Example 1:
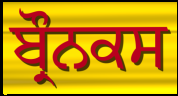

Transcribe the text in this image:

ਬ੍ਰੌਨਕਸ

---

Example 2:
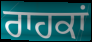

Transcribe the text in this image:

ਰਾਹਕਾਂ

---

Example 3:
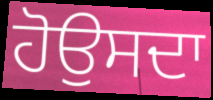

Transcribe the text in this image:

ਹੋਉਸਦਾ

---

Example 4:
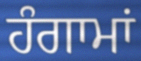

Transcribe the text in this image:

ਹੰਗਾਮਾਂ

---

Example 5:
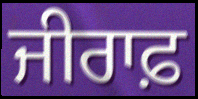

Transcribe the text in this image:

ਜੀਰਾਫ਼